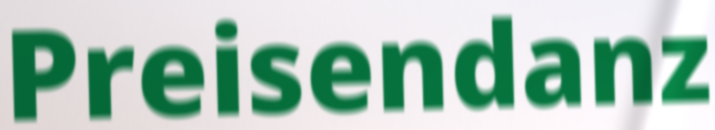
Preisendanz